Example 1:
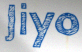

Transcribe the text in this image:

Jiyo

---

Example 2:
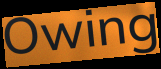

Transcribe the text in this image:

Owing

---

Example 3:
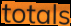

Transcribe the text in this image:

totals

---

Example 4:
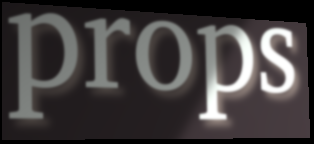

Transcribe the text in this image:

props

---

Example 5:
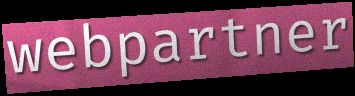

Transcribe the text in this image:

webpartner